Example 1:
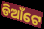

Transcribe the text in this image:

ଡିଆଁଟେ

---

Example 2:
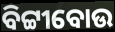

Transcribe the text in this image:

ବିଟ୍ଟୀବୋଉ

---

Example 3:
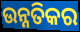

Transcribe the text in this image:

ଉନ୍ନତିକର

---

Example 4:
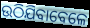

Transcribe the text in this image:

ଉଠିଯିବାବେଳେ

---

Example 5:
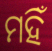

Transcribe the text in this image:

ମହିଁ